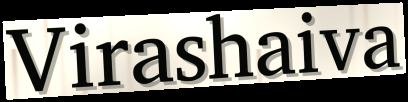
Virashaiva